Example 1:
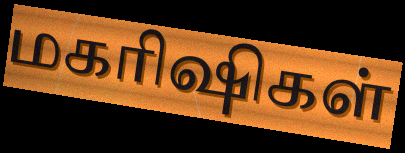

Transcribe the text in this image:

மகரிஷிகள்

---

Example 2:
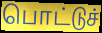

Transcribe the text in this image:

பொட்டுச்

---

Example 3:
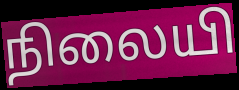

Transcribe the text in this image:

நிலையி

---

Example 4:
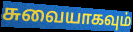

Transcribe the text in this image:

சுவையாகவும்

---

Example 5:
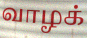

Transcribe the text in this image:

வாழக்